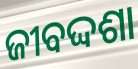
ଜୀବଦ୍ଦଶା